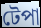
টেপা